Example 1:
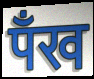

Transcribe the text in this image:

पँख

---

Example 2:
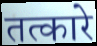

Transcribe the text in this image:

तत्कारे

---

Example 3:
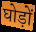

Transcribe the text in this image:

घोड़ों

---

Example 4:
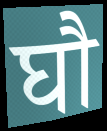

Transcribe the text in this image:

घौ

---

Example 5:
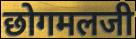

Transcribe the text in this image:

छोगमलजी